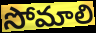
సోమాలి